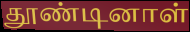
தூண்டினாள்